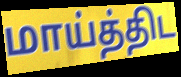
மாய்த்திட